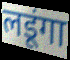
लडूंगा